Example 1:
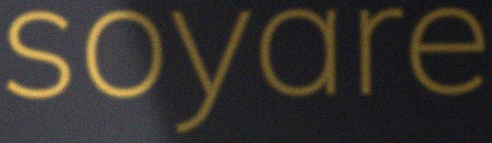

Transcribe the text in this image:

soyare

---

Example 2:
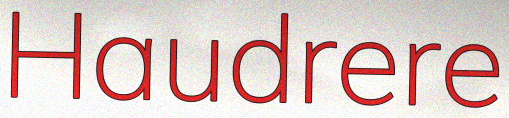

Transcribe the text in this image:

Haudrere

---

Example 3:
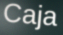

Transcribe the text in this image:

Caja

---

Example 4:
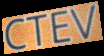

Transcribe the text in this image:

CTEV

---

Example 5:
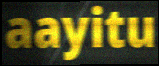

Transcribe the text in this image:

aayitu